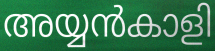
അയ്യൻകാളി